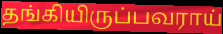
தங்கியிருப்பவராய்